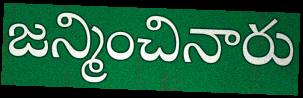
జన్మించినారు